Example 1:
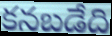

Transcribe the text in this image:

కనబడేది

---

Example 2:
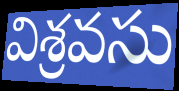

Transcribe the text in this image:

విశ్రవసు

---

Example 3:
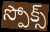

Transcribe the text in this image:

స్పోక్స్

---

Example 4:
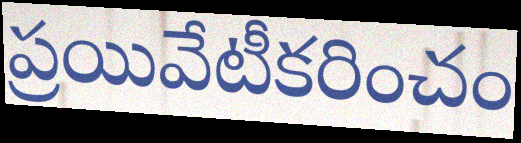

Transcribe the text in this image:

ప్రయివేటీకరించం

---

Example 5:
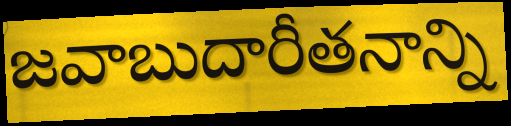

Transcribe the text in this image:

జవాబుదారీతనాన్ని